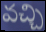
వచ్చి